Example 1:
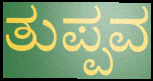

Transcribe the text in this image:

ತುಪ್ಪವ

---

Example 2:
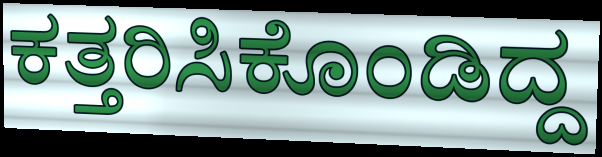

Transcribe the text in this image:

ಕತ್ತರಿಸಿಕೊಂಡಿದ್ದ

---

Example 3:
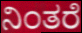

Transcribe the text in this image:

ನಿಂತರೆ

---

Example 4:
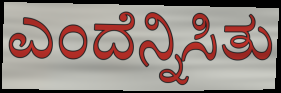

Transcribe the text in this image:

ಎಂದೆನ್ನಿಸಿತು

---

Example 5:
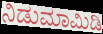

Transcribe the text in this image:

ನಿಡುಮಾಮಿಡಿ